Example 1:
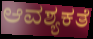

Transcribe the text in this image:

ಆವಶ್ಯಕತೆ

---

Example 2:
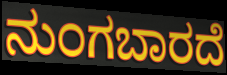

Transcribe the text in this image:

ನುಂಗಬಾರದೆ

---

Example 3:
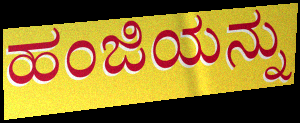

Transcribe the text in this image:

ಹಂಜಿಯನ್ನು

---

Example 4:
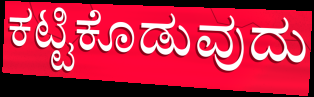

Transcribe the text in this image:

ಕಟ್ಟಿಕೊಡುವುದು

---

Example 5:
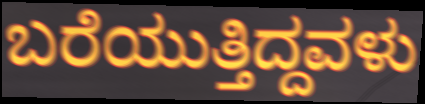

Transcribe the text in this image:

ಬರೆಯುತ್ತಿದ್ದವಳು